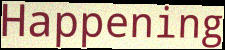
Happening